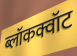
ब्लॉकक्वॉट